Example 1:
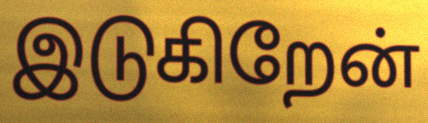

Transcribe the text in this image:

இடுகிறேன்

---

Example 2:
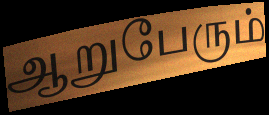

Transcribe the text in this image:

ஆறுபேரும்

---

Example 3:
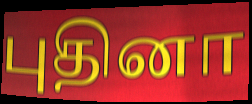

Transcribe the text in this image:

புதினா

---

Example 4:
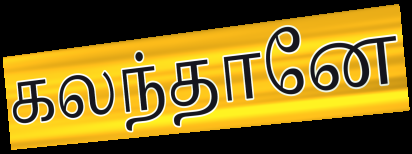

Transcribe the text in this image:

கலந்தானே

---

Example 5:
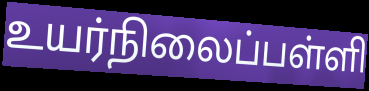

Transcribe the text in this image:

உயர்நிலைப்பள்ளி